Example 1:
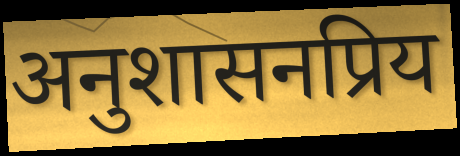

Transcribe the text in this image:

अनुशासनप्रिय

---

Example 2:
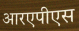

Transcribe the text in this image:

आरएपीएस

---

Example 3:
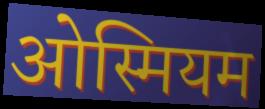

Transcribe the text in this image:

ओस्मियम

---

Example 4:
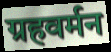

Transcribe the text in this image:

ग्रहवर्मन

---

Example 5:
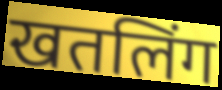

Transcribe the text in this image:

खतलिंग